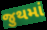
જુથમાં